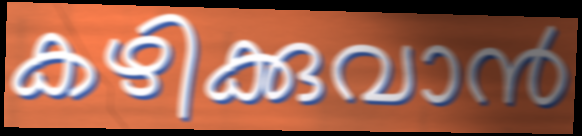
കഴിക്കുവാൻ